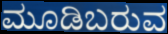
ಮೂಡಿಬರುವ